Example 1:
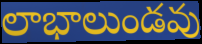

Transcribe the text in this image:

లాభాలుండవు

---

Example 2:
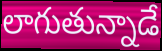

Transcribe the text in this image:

లాగుతున్నాడే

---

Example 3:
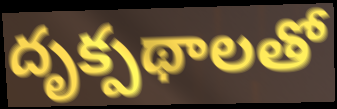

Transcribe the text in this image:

దృక్పథాలతో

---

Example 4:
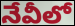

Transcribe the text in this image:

నేవీలో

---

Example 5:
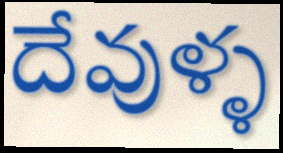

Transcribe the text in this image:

దేవుళ్ళ